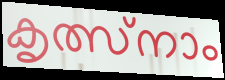
കൃത്സ്നാം